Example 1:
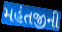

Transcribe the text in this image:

મહંતજીની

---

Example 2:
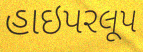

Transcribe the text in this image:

હાઇપરલૂપ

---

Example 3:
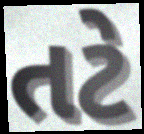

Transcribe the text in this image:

તટે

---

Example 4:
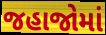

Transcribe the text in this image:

જહાજોમાં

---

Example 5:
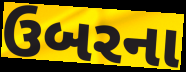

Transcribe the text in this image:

ઉબરના